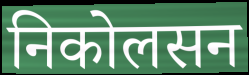
निकोलसन